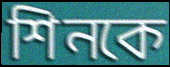
শিনকে